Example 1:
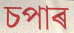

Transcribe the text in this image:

চপাৰ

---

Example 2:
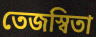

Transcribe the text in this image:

তেজস্বিতা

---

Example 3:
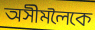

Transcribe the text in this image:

অসীমলৈকে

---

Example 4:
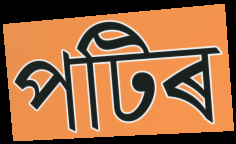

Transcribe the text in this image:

পটিৰ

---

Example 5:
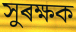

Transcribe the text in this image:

সুৰক্ষক